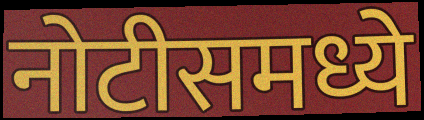
नोटीसमध्ये